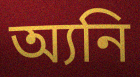
অ্যনি